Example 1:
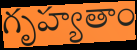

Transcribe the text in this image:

గృహ్యతాం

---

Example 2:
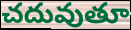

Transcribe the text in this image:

చదువుతూ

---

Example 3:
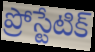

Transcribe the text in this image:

ప్రోస్టేటిక్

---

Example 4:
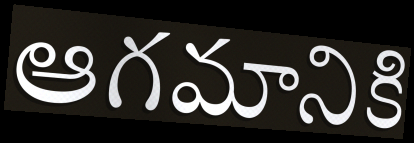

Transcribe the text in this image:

ఆగమానికి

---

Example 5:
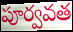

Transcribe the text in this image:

పూర్వవత